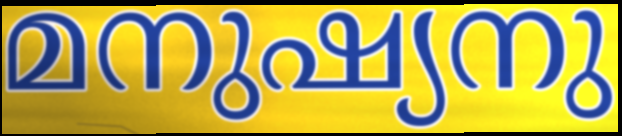
മനുഷ്യനു